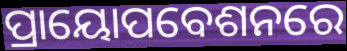
ପ୍ରାୟୋପବେଶନରେ